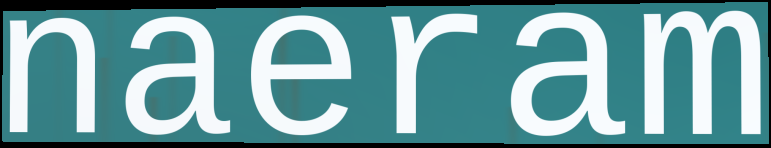
naeram